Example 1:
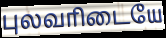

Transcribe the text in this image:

புலவரிடையே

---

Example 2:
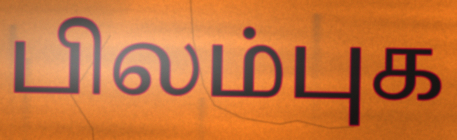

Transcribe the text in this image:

பிலம்புக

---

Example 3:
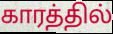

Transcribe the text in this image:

காரத்தில்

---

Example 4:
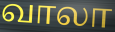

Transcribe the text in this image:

வாலா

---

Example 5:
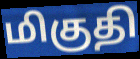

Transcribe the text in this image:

மிகுதி